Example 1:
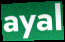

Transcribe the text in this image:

ayal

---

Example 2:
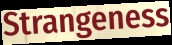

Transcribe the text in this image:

Strangeness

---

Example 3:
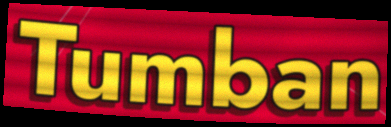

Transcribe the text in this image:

Tumban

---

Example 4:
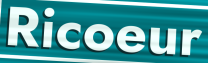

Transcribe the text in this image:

Ricoeur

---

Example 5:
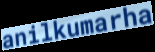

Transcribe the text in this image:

anilkumarha